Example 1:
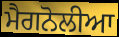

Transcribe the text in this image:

ਮੈਗਨੋਲੀਆ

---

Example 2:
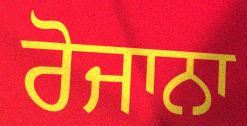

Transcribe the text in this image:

ਰੋਜਾਨਾ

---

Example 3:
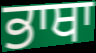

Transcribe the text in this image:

ਭਾਥਾ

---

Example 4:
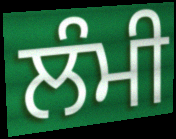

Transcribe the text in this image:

ਲੰਮੀ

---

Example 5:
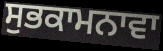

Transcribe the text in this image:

ਸੁਭਕਾਮਨਾਵਾ